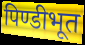
पिण्डीभूत